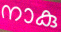
നാകു